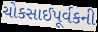
ચોકસાઈપૂર્વકની